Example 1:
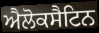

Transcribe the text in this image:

ਐਲੋਕਸੈਟਿਨ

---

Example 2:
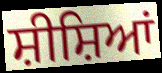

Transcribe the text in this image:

ਸ਼ੀਸ਼ਿਆਂ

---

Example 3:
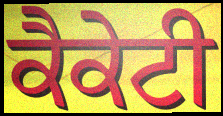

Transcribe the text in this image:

ਕੈਕੇਟੀ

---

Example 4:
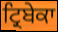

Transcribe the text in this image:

ਟ੍ਰਿਬੇਕਾ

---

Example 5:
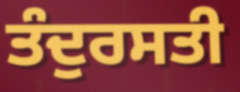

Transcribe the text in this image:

ਤੰਦੁਰਸਤੀ